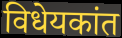
विधेयकांत